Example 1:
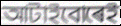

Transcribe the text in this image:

আটাইবোৰেই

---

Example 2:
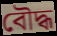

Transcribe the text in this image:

বৌদ্ধ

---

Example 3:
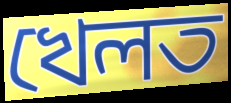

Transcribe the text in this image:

খেলত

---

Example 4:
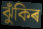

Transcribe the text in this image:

ঝুঁকিৰ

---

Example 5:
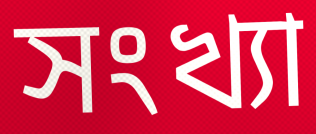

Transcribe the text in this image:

সংখ্যা